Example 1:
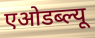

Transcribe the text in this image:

एओडब्ल्यू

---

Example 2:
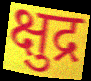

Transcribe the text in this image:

क्षुद्र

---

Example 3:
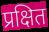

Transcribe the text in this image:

प्रक्षित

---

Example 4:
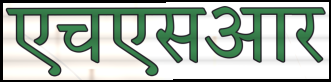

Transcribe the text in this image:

एचएसआर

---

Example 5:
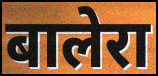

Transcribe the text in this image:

बालेरा